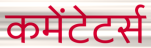
कमेंटेटर्स